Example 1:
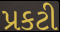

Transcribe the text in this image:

પ્રકટી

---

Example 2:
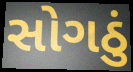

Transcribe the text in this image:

સોગઠું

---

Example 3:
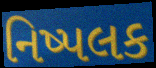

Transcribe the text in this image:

નિષ્પલક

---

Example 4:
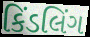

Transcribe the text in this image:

કિંડલિંગ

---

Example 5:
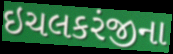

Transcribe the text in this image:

ઇચલકરંજીના